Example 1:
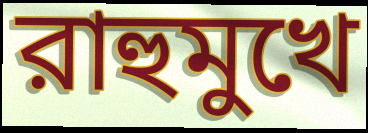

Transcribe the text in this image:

রাহুমুখে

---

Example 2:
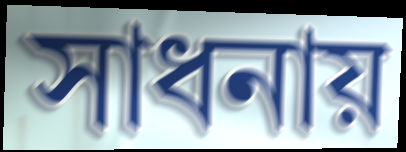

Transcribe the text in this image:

সাধনায়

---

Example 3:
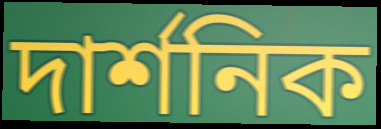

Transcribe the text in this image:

দার্শনিক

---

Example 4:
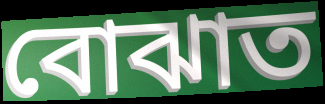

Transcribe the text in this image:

বোঝাত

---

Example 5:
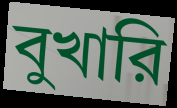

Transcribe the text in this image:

বুখারি